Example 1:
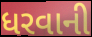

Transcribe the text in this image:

ધરવાની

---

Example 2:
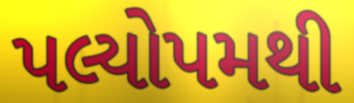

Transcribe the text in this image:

પલ્યોપમથી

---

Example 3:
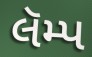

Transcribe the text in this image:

લૅમ્પ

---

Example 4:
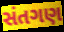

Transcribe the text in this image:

સંતગણ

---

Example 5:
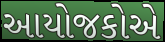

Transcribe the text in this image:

આયોજકોએ